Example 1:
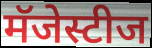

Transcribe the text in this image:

मॅजेस्टीज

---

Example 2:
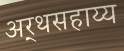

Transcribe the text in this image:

अर्थसहाय्य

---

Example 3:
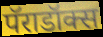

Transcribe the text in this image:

पॅराडॉक्स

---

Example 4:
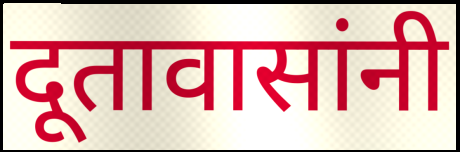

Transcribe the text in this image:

दूतावासांनी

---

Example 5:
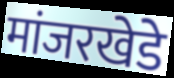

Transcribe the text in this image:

मांजरखेडे